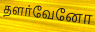
தளர்வேனோ